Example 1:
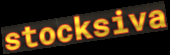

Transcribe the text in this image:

stocksiva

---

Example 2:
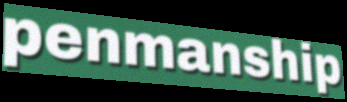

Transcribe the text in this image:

penmanship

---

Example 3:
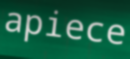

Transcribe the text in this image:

apiece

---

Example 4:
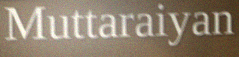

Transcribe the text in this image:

Muttaraiyan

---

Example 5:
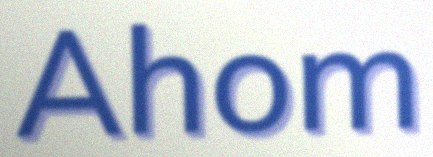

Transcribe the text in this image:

Ahom